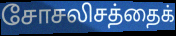
சோசலிசத்தைக்